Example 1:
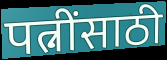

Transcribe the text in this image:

पत्नींसाठी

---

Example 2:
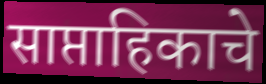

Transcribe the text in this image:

साप्ताहिकाचे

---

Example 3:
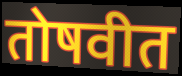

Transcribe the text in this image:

तोषवीत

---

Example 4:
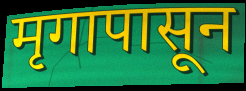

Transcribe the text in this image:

मृगापासून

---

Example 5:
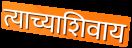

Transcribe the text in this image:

त्याच्याशिवाय